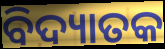
ବିଦ୍ୟାତକ